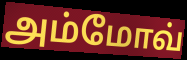
அம்மோவ்